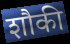
शौकी